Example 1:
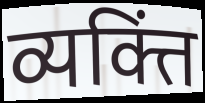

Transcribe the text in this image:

व्यक्तिं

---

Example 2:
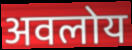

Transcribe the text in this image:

अवलोय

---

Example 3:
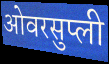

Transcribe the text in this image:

ओवरसुप्ली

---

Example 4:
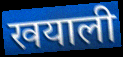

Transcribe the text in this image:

खयाली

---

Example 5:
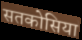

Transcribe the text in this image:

सतकोसिया